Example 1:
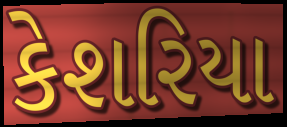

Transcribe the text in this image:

કેશરિયા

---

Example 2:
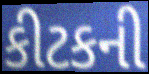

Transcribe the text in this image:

કીટકની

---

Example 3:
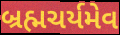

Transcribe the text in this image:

બ્રહ્મચર્યમેવ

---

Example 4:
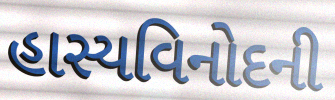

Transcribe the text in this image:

હાસ્યવિનોદની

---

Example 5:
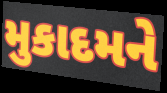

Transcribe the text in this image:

મુકાદમને